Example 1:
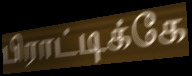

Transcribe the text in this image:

பிராட்டிக்கே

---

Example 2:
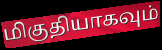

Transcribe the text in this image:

மிகுதியாகவும்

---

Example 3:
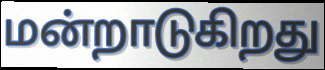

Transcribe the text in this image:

மன்றாடுகிறது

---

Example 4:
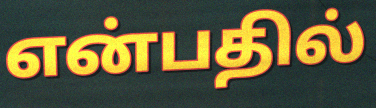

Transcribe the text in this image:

என்பதில்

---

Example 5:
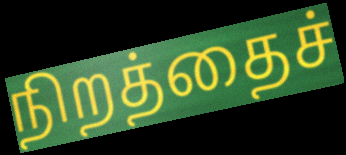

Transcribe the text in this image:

நிறத்தைச்